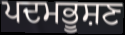
ਪਦਮਭੂਸ਼ਣ